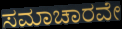
ಸಮಾಚಾರವೇ